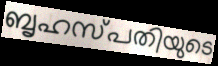
ബൃഹസ്പതിയുടെ